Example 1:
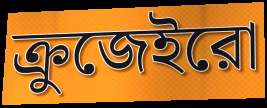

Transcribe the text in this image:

ক্রুজেইরো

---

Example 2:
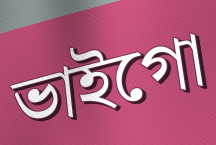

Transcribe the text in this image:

ভাইগো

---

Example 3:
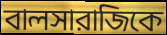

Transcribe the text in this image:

বালসারাজিকে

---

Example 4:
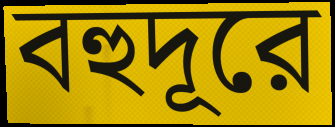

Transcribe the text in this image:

বহুদূরে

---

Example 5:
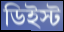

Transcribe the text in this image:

ডিইস্ট